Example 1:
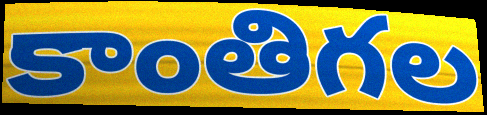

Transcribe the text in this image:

కాంతిగల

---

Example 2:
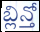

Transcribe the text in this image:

బ్లిన్తో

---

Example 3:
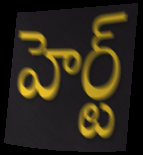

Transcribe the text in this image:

హెర్ట్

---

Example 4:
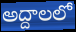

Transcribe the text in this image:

అద్దాలలో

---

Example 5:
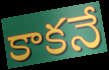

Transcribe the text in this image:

కాకనే